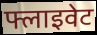
फ्लाइवेट